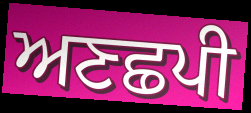
ਅਣਛਪੀ